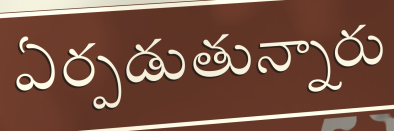
ఏర్పడుతున్నారు